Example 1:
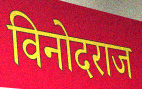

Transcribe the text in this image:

विनोदराज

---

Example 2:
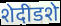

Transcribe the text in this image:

शेदीडशे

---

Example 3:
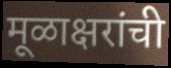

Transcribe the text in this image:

मूळाक्षरांची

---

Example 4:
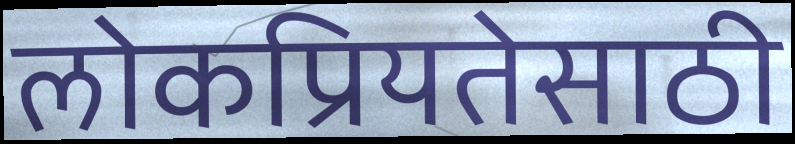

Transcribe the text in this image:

लोकप्रियतेसाठी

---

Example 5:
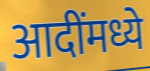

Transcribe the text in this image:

आदींमध्ये